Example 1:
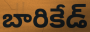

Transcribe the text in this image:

బారికేడ్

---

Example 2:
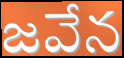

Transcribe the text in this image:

జవేన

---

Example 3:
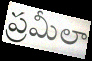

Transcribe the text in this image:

ప్రమీలా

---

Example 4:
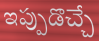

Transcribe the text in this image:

ఇప్పుడొచ్చే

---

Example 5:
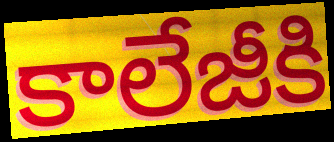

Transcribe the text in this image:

కాలేజీకి